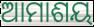
ଆମାଶୟ